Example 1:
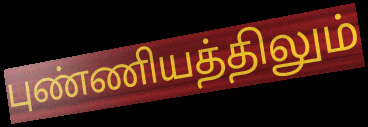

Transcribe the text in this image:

புண்ணியத்திலும்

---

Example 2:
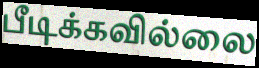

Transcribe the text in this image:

பீடிக்கவில்லை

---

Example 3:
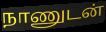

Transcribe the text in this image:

நாணுடன்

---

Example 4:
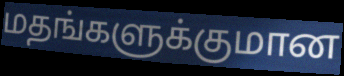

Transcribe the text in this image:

மதங்களுக்குமான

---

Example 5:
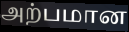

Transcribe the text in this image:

அற்பமான